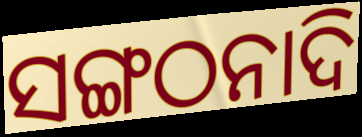
ସଙ୍ଗଠନାଦି